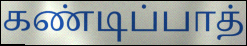
கண்டிப்பாத்